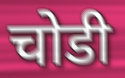
चोडी